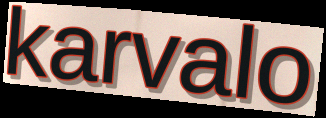
karvalo